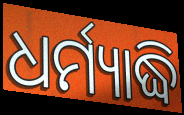
ଧର୍ମ୍ୟାଦ୍ଧି